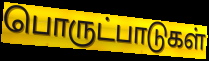
பொருட்பாடுகள்